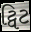
ટ્વિટ